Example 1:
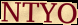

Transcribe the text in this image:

NTYO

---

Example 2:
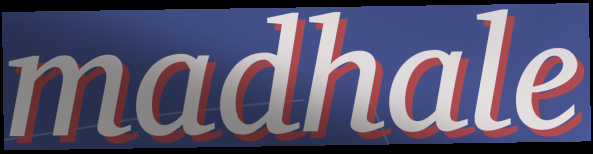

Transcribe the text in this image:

madhale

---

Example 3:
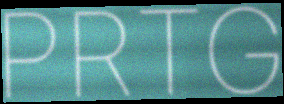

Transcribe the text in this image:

PRTG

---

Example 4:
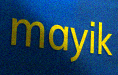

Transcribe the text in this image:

mayik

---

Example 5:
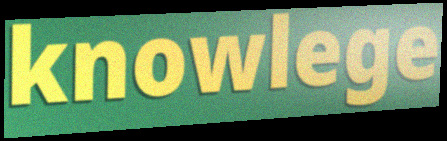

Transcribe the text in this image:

knowlege